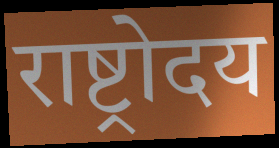
राष्ट्रोदय